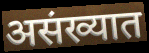
असंख्यात